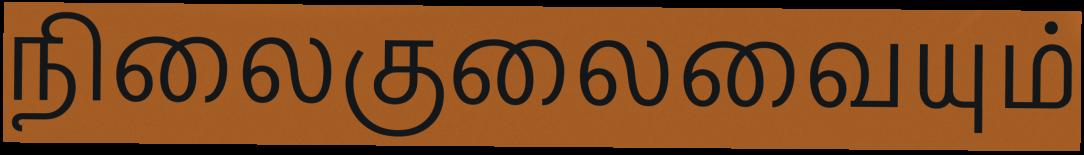
நிலைகுலைவையும்